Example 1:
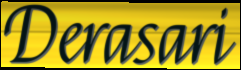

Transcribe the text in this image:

Derasari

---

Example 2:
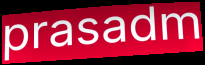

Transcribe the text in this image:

prasadm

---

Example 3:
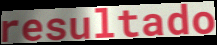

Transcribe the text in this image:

resultado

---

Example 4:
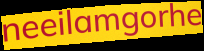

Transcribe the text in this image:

neeilamgorhe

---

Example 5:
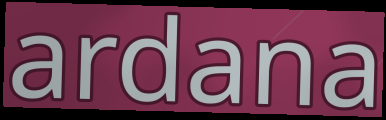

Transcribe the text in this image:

ardana